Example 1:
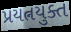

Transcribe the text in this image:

પ્રયત્નયુક્ત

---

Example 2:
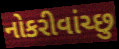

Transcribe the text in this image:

નોકરીવાંચ્છુ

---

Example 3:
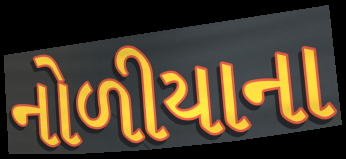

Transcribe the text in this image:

નોળીયાના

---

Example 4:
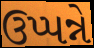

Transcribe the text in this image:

ઉપ્પન્ને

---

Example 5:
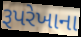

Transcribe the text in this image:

રૂપરેખાના